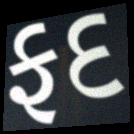
ફદ